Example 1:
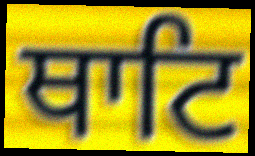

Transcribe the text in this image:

ਥਾਟਿ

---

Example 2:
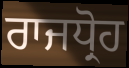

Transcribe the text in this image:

ਰਾਜਧ੍ਰੋਹ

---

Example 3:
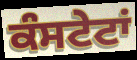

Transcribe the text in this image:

ਕੰਸਟੇਟਾਂ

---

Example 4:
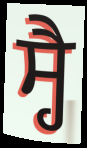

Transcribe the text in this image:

ਸ੍ਹੈ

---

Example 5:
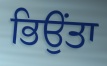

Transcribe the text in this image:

ਭਿਉਂਤਾ